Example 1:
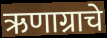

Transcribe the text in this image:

ऋणाग्राचे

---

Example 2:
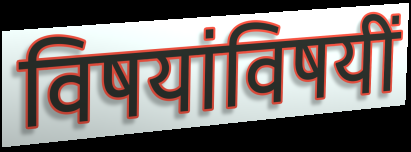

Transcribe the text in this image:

विषयांविषयीं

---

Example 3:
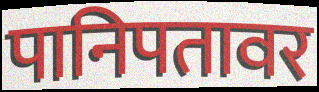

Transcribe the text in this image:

पानिपतावर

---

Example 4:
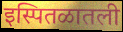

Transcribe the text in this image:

इस्पितळातली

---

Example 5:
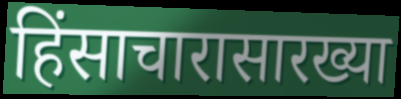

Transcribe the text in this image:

हिंसाचारासारख्या